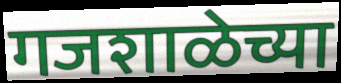
गजशाळेच्या